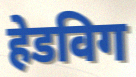
हेडविग